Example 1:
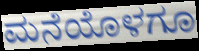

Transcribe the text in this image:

ಮನೆಯೊಳಗೂ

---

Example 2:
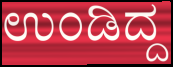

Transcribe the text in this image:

ಉಂಡಿದ್ದ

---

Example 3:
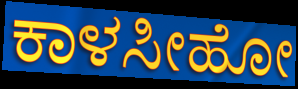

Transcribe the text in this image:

ಕಾಳಸೀಹೋ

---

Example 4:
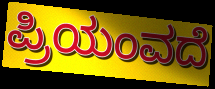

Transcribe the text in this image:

ಪ್ರಿಯಂವದೆ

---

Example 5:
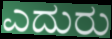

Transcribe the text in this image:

ಎದುರು